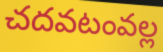
చదవటంవల్ల